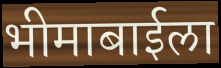
भीमाबाईला